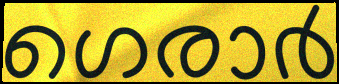
ഗെരാർ